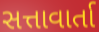
સત્તાવાર્તા